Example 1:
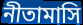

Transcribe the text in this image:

নীতামাসি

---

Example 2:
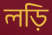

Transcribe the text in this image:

লড়ি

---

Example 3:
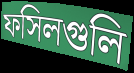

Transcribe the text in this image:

ফসিলগুলি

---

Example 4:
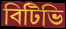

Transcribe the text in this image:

বিটিভি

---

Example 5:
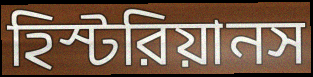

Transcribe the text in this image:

হিস্টরিয়ানস